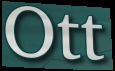
Ott